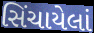
સિંચાયેલાં